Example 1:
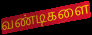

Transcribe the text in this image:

வண்டிகளை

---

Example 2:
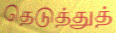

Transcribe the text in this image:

தெடுத்துத்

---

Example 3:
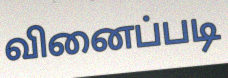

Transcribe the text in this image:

வினைப்படி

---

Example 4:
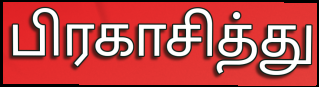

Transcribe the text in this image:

பிரகாசித்து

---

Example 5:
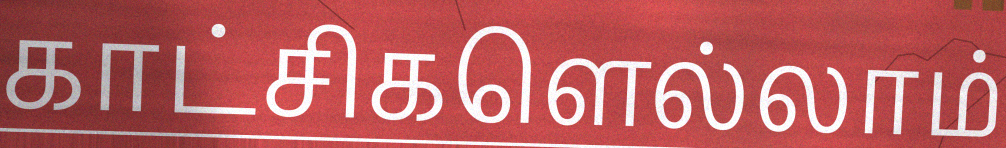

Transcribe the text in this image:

காட்சிகளெல்லாம்